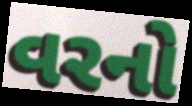
વરનો